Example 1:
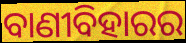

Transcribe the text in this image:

ବାଣୀବିହାରର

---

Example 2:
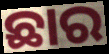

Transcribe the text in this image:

ଛାର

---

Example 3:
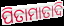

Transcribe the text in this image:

ପିତାମାତାଦି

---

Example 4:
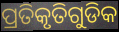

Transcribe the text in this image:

ପ୍ରତିକୃତିଗୁଡିକ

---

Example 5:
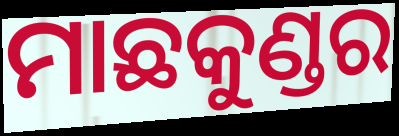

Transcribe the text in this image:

ମାଛକୁଣ୍ଡର